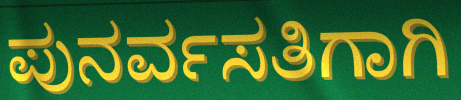
ಪುನರ್ವಸತಿಗಾಗಿ